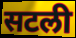
सटली